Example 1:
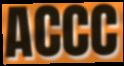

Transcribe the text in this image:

ACCC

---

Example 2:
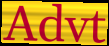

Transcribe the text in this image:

Advt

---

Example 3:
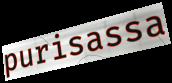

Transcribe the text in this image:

purisassa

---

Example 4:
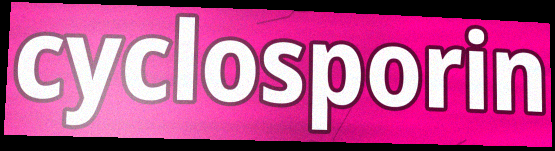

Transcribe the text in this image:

cyclosporin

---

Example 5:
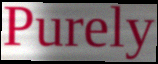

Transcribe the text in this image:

Purely